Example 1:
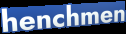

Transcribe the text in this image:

henchmen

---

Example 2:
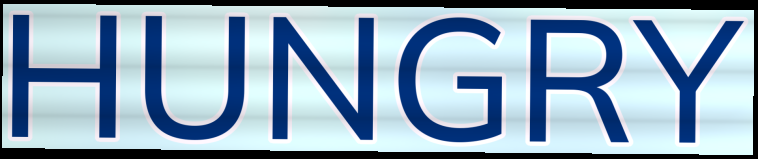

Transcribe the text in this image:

HUNGRY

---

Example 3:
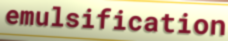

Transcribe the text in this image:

emulsification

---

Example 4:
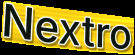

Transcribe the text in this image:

Nextro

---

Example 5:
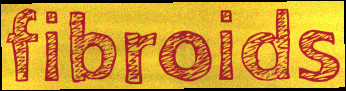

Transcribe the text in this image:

fibroids